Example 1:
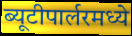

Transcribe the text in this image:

ब्यूटीपार्लरमध्ये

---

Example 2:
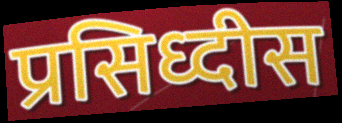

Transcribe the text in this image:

प्रसिध्दीस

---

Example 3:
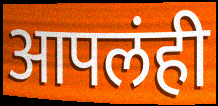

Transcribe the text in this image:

आपलंही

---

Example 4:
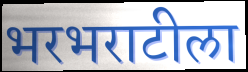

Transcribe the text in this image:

भरभराटीला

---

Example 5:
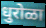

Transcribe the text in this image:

धुरोळा